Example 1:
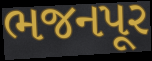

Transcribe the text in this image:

ભજનપૂર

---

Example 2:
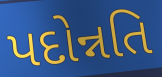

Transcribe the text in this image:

પદોન્નતિ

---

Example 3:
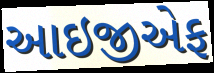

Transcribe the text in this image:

આઇજીએફ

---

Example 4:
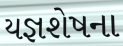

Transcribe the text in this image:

યજ્ઞશેષના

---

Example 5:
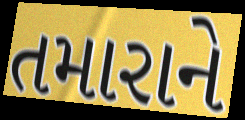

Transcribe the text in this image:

તમારાને